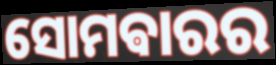
ସୋମଵାରର